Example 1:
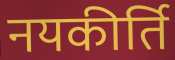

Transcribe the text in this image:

नयकीर्ति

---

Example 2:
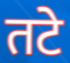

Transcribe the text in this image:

तटे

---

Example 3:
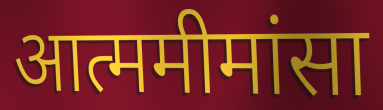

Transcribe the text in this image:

आत्ममीमांसा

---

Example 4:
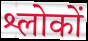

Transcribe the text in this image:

श्लोकों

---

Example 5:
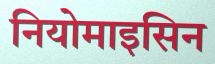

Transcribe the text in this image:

नियोमाइसिन